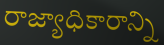
రాజ్యాధికారాన్ని